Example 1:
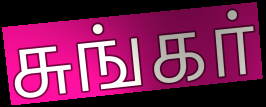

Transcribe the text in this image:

சுங்கர்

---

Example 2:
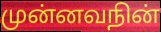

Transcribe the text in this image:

முன்னவநின்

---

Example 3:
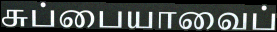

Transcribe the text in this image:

சுப்பையாவைப்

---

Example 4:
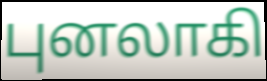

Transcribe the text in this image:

புனலாகி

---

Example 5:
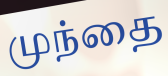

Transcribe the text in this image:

முந்தை